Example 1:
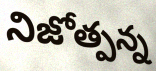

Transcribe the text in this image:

నిజోత్పన్న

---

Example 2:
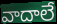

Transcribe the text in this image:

వాదాలే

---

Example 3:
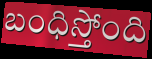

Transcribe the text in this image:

బంధిస్తోంది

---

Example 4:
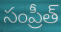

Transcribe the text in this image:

సంప్రీత్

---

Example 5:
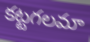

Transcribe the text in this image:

కట్టగలమా